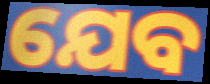
ଯେବ